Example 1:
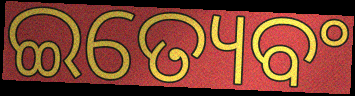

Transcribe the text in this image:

ଇତ୍ୟେବଂ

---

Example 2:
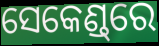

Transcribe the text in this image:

ସେକେଣ୍ଡ୍‌ରେ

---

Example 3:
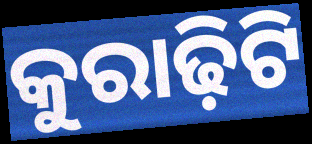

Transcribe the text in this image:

କୁରାଢ଼ିଟି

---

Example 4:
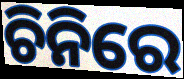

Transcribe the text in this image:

ଚିନିରେ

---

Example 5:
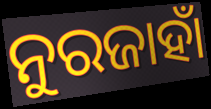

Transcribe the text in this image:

ନୁରଜାହାଁ